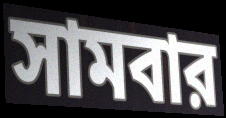
সামবার